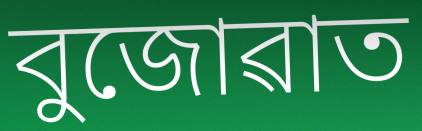
বুজোৱাত